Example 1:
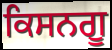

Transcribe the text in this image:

ਕਿਸਨਗੂ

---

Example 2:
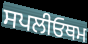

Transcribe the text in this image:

ਸਪਲੀਓਥਮ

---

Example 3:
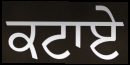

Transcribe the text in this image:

ਕਟਾਏ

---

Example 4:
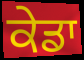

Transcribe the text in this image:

ਕੇਡਾ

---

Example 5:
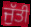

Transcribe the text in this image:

ਜੁੱਤੀ